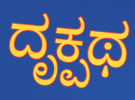
ದೃಕ್ಪಥ